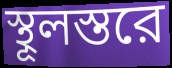
স্থূলস্তরে